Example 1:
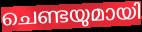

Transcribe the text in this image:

ചെണ്ടയുമായി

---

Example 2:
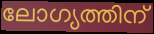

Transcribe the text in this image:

ലോഗ്യത്തിന്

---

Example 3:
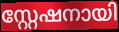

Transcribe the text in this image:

സ്റ്റേഷനായി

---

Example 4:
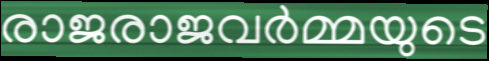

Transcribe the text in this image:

രാജരാജവർമ്മയുടെ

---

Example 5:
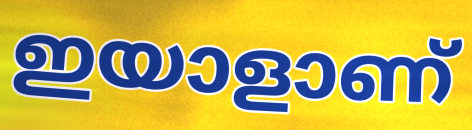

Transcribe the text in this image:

ഇയാളാണ്